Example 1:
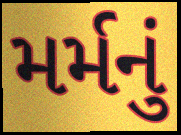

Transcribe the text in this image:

મર્મનું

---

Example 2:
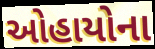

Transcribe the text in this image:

ઓહાયોના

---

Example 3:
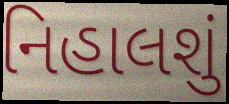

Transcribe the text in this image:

નિહાલશું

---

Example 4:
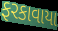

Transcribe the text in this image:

ફરકાવાયા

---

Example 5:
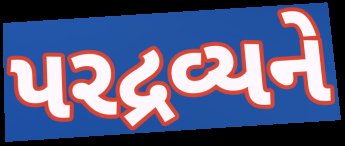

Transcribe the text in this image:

પરદ્રવ્યને